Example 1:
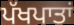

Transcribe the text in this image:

ਪੱਖਪਾਤਾਂ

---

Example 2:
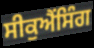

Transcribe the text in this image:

ਸੀਕੁਐਂਸਿੰਗ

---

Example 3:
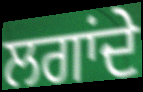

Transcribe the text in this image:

ਲਗਾਂਦੇ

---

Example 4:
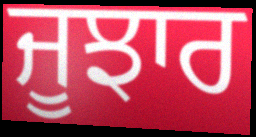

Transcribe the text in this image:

ਜੂਝਾਰ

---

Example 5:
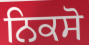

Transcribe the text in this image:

ਨਿਕਸੋ